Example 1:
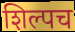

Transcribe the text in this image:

शिल्पच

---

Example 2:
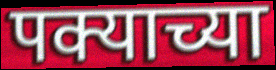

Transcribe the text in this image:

पक्याच्या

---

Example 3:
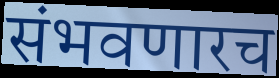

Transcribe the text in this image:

संभवणारच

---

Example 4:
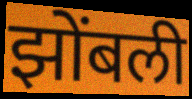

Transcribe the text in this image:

झोंबली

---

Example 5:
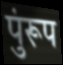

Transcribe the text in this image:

पुंरूप